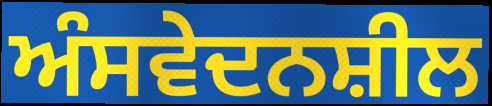
ਅੰਸਵੇਦਨਸ਼ੀਲ